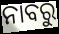
ନାବରୁ